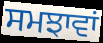
ਸਮਝਾਵਾਂ